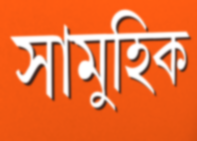
সামুহিক